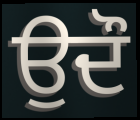
ਉਦੌ